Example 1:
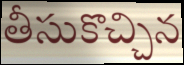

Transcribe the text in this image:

తీసుకొచ్చిన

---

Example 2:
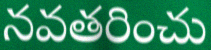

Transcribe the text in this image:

నవతరించు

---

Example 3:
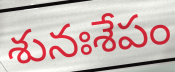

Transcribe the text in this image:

శునఃశేపం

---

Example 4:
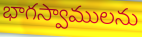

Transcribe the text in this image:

భాగస్వాములను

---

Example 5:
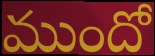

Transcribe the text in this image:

ముందో